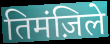
तिमंज़िले